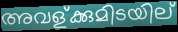
അവള്ക്കുമിടയില്